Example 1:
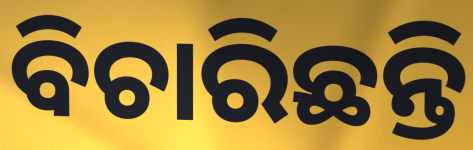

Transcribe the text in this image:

ବିଚାରିଛନ୍ତି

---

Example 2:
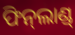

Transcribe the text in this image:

ଫିନ୍‌ଲାଣ୍ଡ୍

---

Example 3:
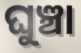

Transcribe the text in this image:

ଘୁଞ୍ଚା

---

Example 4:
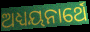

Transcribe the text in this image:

ଅଧ୍ୟୟନାର୍ଥେ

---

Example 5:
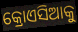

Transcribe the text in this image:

କ୍ରୋଏସିଆକୁ